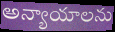
అన్యాయాలను